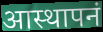
आस्थापनं